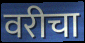
वरीचा